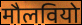
मौलवियो